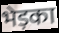
भेड़का